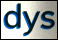
dys